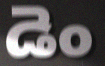
డెం